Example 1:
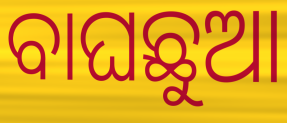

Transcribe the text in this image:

ବାଘଛୁଆ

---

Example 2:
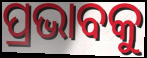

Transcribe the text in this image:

ପ୍ରଭାବକୁ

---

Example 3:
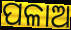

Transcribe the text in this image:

ପଳାଅ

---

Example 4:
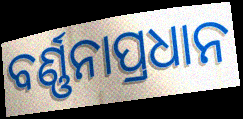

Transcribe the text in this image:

ବର୍ଣ୍ଣନାପ୍ରଧାନ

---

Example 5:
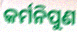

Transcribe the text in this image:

କର୍ମନିପୁଣ